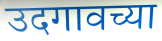
उदगावच्या